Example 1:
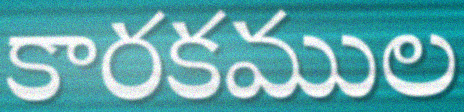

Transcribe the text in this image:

కారకముల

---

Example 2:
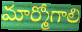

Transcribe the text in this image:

మార్మోగాలి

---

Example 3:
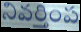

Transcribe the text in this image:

నివర్తింప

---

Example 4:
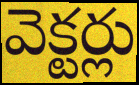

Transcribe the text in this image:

వెక్టర్లు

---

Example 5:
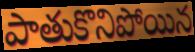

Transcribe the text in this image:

పాతుకొనిపోయిన